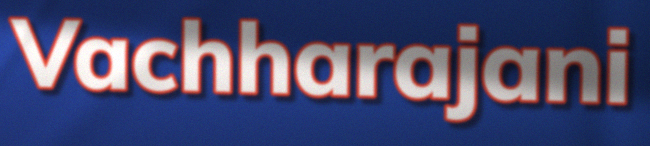
Vachharajani